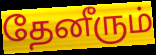
தேனீரும்